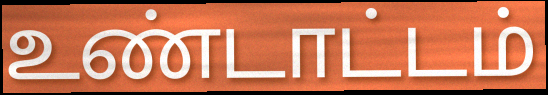
உண்டாட்டம்